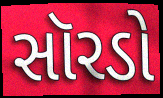
સૉરડો